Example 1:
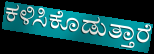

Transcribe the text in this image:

ಕಳಿಸಿಕೊಡುತ್ತಾರೆ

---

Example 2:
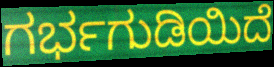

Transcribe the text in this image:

ಗರ್ಭಗುಡಿಯಿದೆ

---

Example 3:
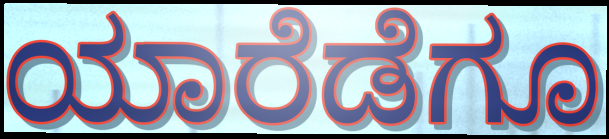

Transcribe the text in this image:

ಯಾರೆಡೆಗೂ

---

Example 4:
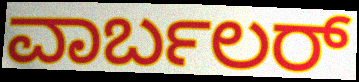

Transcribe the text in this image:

ವಾರ್ಬಲರ್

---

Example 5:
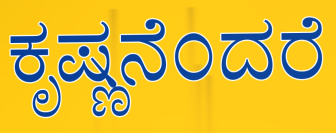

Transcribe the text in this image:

ಕೃಷ್ಣನೆಂದರೆ